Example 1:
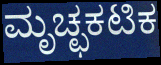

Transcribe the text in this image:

ಮೃಚ್ಛಕಟಿಕ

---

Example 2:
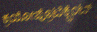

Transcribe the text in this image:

ಕ್ರಯೋಪ್ರೊಟೆಕ್ಟೆಂಟ್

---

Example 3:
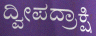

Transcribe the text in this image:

ದ್ವೀಪದ್ರಾಕ್ಷಿ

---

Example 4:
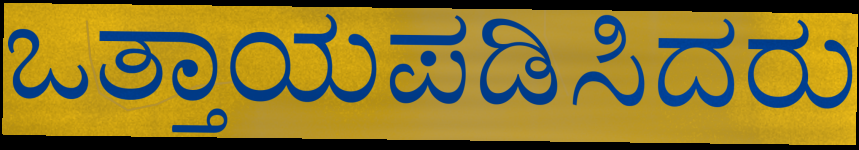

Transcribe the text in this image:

ಒತ್ತಾಯಪಡಿಸಿದರು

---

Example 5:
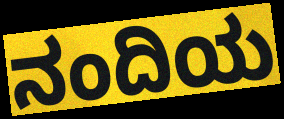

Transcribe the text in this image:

ನಂದಿಯ